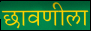
छावणीला